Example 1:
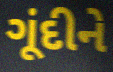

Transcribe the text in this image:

ગૂંદીને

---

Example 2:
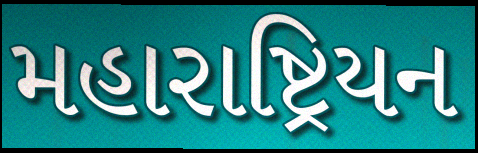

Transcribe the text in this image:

મહારાષ્ટ્રિયન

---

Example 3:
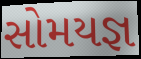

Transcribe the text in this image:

સોમયજ્ઞ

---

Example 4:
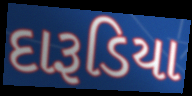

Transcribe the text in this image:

દારૂડિયા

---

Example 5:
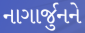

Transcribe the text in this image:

નાગાર્જુનને